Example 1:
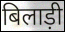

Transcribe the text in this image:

बिलाड़ी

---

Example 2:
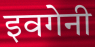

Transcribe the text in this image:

इवगेनी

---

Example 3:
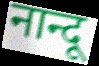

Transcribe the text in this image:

नान्दू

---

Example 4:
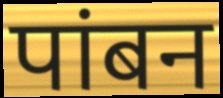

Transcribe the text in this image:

पांबन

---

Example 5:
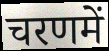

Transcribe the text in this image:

चरणमें